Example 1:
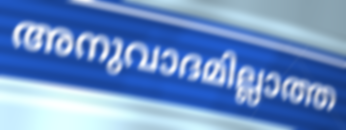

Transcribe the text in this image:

അനുവാദമില്ലാത്ത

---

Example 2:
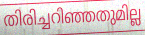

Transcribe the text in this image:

തിരിച്ചറിഞ്ഞതുമില്ല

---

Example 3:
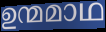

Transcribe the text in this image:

ഉന്മമാഥ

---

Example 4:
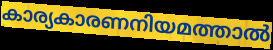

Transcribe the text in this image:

കാര്യകാരണനിയമത്താൽ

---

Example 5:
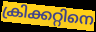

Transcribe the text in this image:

ക്രിക്കറ്റിനെ